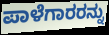
ಪಾಳೆಗಾರರನ್ನು